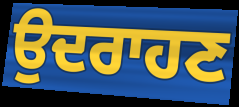
ਉਦਰਾਹਣ